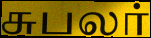
சுபலர்